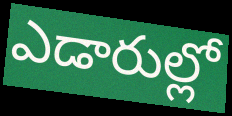
ఎడారుల్లో